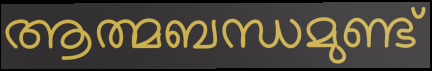
ആത്മബന്ധമുണ്ട്